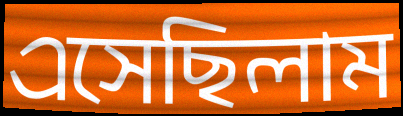
এসেছিলাম